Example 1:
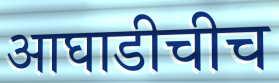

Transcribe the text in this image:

आघाडीचीच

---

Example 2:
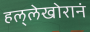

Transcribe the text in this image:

हल्लेखोरानं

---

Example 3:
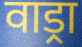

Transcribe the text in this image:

वाड्रा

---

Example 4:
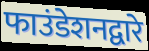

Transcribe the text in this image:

फाउंडेशनद्वारे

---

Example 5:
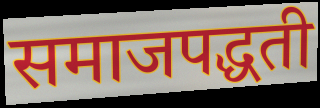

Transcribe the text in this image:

समाजपद्धती